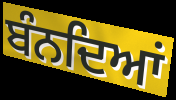
ਬੰਨਦਿਆਂ